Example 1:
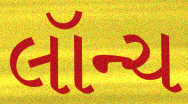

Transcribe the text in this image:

લૉન્ચ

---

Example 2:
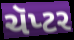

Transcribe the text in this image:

ચૅપ્ટર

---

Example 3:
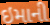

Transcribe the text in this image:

ઇમાની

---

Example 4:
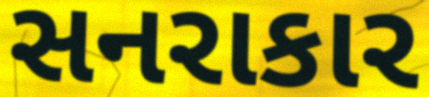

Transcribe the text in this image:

સનરાકાર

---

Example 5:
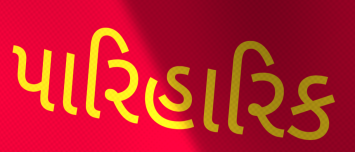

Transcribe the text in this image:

પારિહારિક